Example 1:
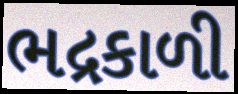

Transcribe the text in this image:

ભદ્રકાળી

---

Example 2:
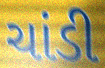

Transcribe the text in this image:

ચાંડી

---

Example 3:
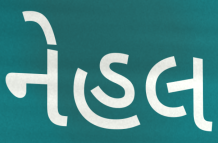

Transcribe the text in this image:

નેહલ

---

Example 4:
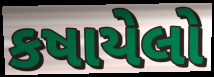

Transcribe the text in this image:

કષાયેલો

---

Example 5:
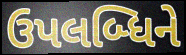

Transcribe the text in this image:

ઉપલબ્ધિને